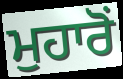
ਮੁਹਾਰੋਂ